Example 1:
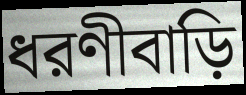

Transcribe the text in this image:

ধরণীবাড়ি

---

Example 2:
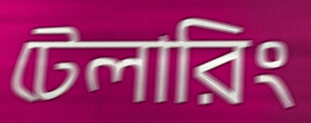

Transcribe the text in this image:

টেলারিং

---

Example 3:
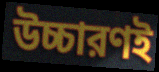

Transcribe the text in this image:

উচ্চারণই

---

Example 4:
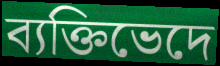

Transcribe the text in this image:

ব্যক্তিভেদে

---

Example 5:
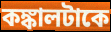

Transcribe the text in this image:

কঙ্কালটাকে